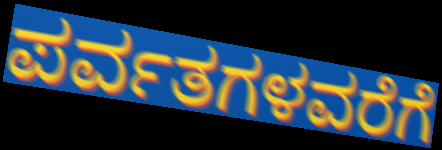
ಪರ್ವತಗಳವರೆಗೆ